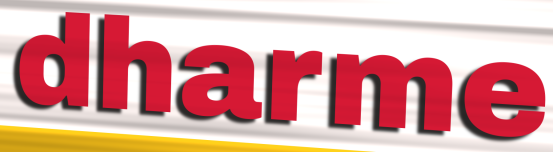
dharme